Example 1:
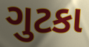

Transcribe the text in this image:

ગુટકા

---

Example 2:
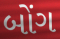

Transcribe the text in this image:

બોંગ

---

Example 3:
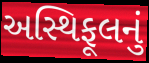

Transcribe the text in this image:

અસ્થિફૂલનું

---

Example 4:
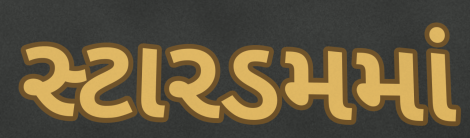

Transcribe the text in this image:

સ્ટારડમમાં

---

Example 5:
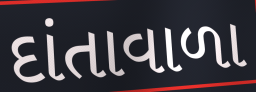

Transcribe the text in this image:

દાંતાવાળા